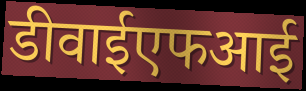
डीवाईएफआई